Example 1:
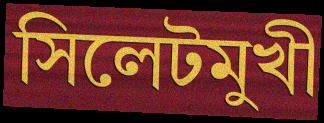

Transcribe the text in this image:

সিলেটমুখী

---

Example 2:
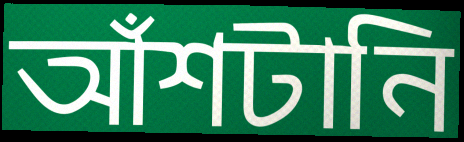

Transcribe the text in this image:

আঁশটানি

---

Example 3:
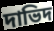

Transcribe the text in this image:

দাভিদ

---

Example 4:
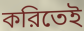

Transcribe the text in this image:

করিতেই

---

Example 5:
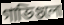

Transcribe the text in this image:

গাভিগুলো